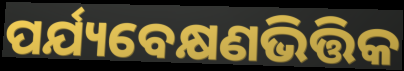
ପର୍ଯ୍ୟବେକ୍ଷଣଭିତ୍ତିକ